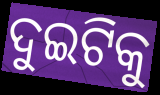
ଦୁଇଟିକୁ